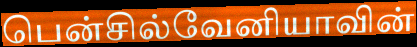
பென்சில்வேனியாவின்